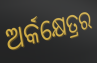
ଅର୍କକ୍ଷେତ୍ରର